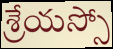
శ్రేయస్సో